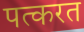
पत्करत